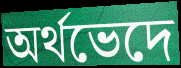
অর্থভেদে